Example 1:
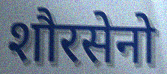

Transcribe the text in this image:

शौरसेनो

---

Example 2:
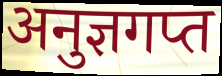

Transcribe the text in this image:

अनुज्ञगप्त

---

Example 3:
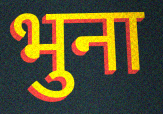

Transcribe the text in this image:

भुना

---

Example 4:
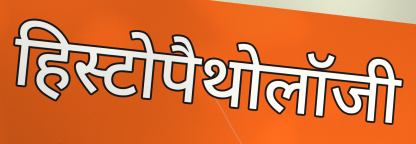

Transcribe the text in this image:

हिस्टोपैथोलॉजी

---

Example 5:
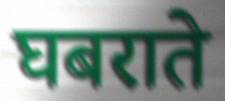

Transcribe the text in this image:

घबराते